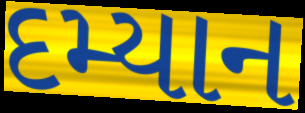
દમ્યાન